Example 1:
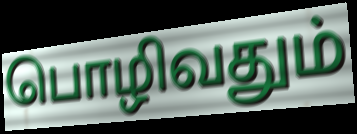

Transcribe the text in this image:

பொழிவதும்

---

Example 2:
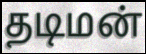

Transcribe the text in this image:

தடிமன்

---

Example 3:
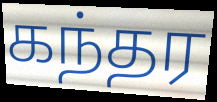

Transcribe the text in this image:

கந்தர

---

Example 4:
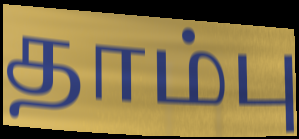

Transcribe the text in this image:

தாம்பு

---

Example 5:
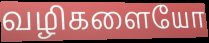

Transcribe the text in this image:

வழிகளையோ